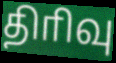
திரிவு